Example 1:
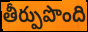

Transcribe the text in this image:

తీర్పుపొంది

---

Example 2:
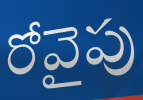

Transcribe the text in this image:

రోవైపు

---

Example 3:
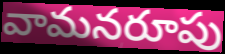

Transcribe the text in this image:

వామనరూపు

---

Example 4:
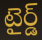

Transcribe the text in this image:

టైర్డ్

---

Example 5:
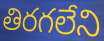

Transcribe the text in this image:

తిరగలేని